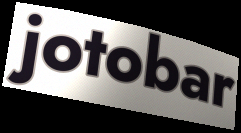
jotobar